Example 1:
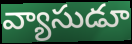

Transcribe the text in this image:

వ్యాసుడూ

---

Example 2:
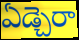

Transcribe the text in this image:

ఏడ్చెరా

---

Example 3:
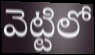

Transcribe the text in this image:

వెట్టిలో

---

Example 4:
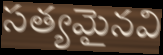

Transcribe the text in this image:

సత్యమైనవి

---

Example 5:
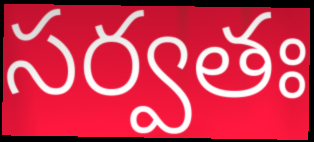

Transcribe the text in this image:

సర్వతః